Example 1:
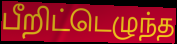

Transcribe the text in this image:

பீறிட்டெழுந்த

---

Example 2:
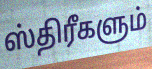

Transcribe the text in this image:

ஸ்திரீகளும்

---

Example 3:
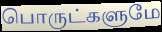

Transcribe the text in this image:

பொருட்களுமே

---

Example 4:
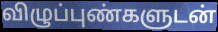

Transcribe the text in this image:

விழுப்புண்களுடன்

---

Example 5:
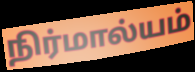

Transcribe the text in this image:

நிர்மால்யம்